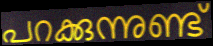
പറക്കുന്നുണ്ട്